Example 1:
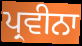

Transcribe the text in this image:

ਪ੍ਰਵੀਨਾ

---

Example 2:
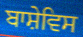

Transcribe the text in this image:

ਬਾਸ਼ੇਵਿਸ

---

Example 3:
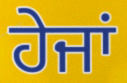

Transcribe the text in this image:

ਹੇਜਾਂ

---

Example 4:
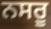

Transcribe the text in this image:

ਨਸਰੂ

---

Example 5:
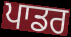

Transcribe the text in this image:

ਪਾਡਰ